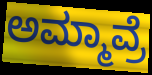
ಅಮ್ಮಾವ್ರೆ